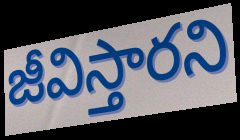
జీవిస్తారని